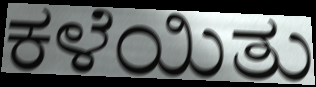
ಕಳೆಯಿತು